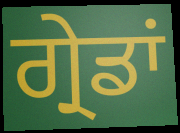
ਗ੍ਰੇਡਾਂ